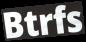
Btrfs